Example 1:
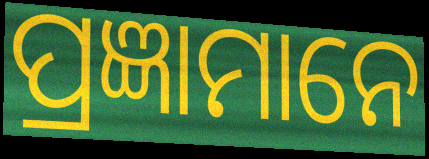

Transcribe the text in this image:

ପ୍ରଜ୍ଞାମାନେ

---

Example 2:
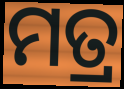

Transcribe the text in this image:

ମତ୍ର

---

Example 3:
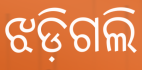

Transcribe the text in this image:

ଝଡ଼ିଗଲି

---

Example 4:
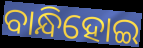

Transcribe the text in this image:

ବାନ୍ଧିହୋଇ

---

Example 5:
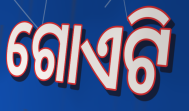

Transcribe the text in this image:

ଗୋଏଟି